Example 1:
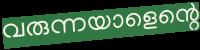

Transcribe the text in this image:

വരുന്നയാളെന്റെ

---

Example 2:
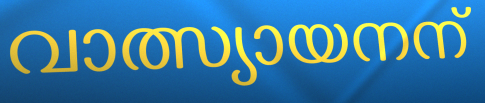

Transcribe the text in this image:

വാത്സ്യായനന്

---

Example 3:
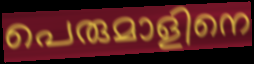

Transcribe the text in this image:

പെരുമാളിനെ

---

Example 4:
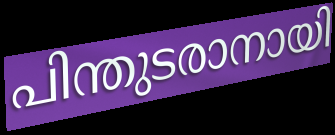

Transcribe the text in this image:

പിന്തുടരാനായി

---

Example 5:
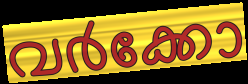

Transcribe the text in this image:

വർക്കോ